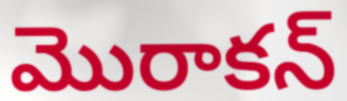
మొరాకన్